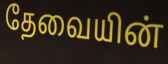
தேவையின்